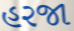
હરજા